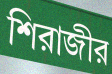
শিরাজীর